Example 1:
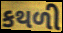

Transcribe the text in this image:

કથળી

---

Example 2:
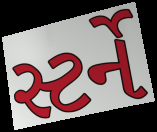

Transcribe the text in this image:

સ્ટર્ને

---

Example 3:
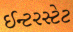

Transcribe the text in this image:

ઈન્ટરસ્ટેટ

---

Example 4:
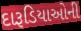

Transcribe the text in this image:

દારૂડિયાઓની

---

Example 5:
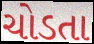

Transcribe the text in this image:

ચોડતા